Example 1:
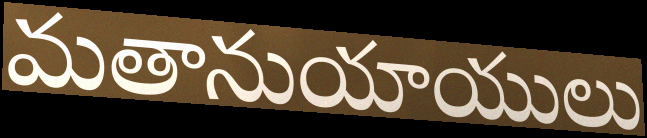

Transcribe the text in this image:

మతానుయాయులు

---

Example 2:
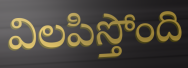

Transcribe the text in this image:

విలపిస్తోంది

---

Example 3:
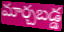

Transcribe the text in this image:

మార్చబడ్డ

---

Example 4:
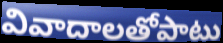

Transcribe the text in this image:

వివాదాలతోపాటు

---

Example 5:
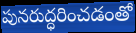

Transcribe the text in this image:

పునరుద్ధరించడంతో